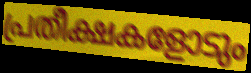
പ്രതീക്ഷകളോടും